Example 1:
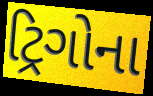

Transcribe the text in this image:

ટ્રિગોના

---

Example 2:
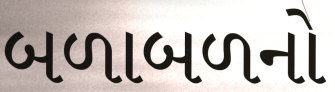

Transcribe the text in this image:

બળાબળનો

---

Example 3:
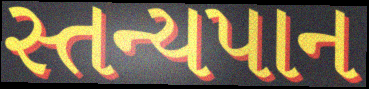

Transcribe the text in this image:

સ્તન્યપાન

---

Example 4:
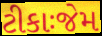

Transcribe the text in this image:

ટીકાઃજેમ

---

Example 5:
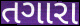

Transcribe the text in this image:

તગારા